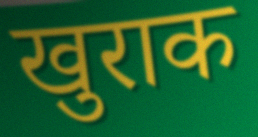
खुराक